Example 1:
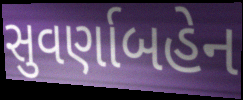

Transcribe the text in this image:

સુવર્ણાબહેન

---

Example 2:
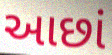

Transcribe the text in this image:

આછાં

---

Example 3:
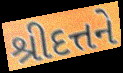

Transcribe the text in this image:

શ્રીદત્તને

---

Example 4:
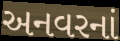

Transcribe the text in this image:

અનવરનાં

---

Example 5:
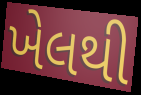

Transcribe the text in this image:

ખેલથી